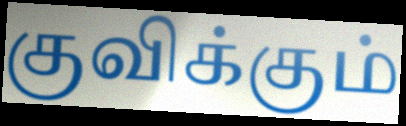
குவிக்கும்